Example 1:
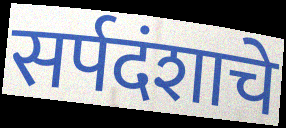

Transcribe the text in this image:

सर्पदंशाचे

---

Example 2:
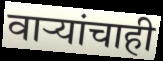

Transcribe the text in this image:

वाऱ्यांचाही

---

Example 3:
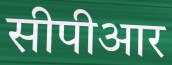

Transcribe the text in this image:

सीपीआर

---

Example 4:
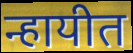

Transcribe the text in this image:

न्हायीत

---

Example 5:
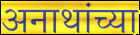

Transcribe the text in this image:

अनाथांच्या